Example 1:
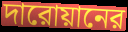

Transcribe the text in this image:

দারোয়ানের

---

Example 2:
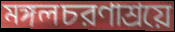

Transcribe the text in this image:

মঙ্গলচরণাশ্রয়ে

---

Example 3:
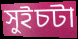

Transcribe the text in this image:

সুইচটা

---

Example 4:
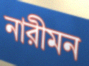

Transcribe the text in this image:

নারীমন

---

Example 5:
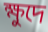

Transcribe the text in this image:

ক্ষুদে